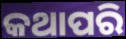
କଥାପରି